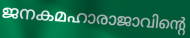
ജനകമഹാരാജാവിന്റെ